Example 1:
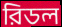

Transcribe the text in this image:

রিডল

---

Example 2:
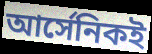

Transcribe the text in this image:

আর্সেনিকই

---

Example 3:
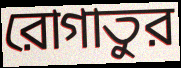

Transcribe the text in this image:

রোগাতুর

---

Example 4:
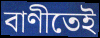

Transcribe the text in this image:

বাণীতেই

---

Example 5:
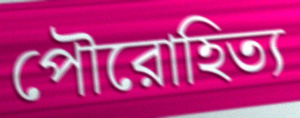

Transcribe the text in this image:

পৌরোহিত্য